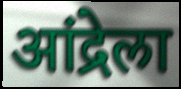
आंद्रेला